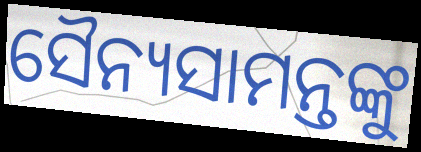
ସୈନ୍ୟସାମନ୍ତଙ୍କୁ